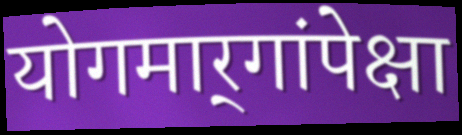
योगमार्गांपेक्षा